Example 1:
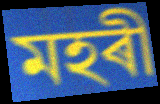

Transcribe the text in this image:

মহৰী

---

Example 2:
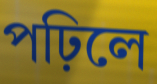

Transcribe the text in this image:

পঢ়িলে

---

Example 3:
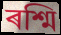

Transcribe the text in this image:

ৰশ্মি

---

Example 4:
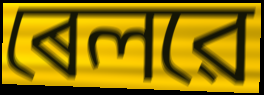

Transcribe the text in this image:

ৰেলৱে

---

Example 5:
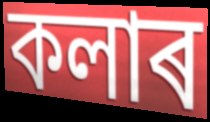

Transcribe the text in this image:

কলাৰ